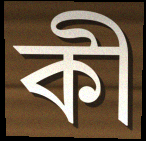
কী